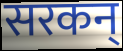
सरकन्